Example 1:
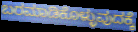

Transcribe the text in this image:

ಬರಮಾಡಿಕೊಳ್ಳುವುದಕ್ಕೆ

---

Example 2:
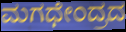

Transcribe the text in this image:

ಮಗಧೇಂದ್ರದ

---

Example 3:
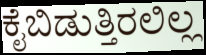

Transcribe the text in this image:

ಕೈಬಿಡುತ್ತಿರಲಿಲ್ಲ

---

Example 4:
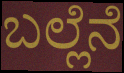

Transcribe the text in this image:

ಬಲ್ಲೆನೆ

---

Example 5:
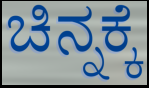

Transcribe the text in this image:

ಚಿನ್ನಕ್ಕೆ